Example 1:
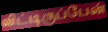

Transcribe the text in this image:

விட்டிருப்பேன்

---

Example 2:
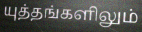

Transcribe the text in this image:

யுத்தங்களிலும்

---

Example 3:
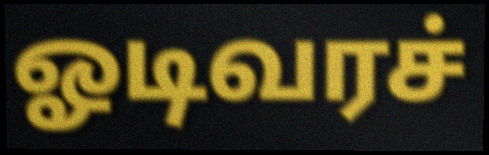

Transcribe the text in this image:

ஓடிவரச்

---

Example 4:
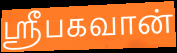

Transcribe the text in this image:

ஸ்ரீபகவான்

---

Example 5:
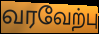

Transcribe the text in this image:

வரவேற்பு